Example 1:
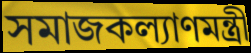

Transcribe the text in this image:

সমাজকল্যাণমন্ত্রী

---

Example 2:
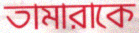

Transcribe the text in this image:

তামারাকে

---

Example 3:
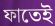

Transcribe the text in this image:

ফাতেই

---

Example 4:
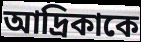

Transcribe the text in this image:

আদ্রিকাকে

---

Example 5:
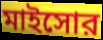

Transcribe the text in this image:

মাইসোর